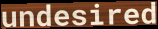
undesired